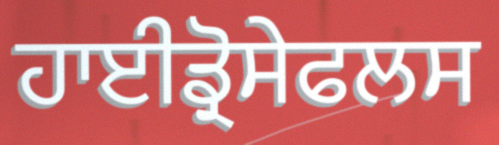
ਹਾਈਡ੍ਰੋਸੇਫਲਸ